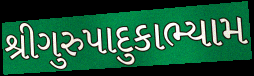
શ્રીગુરુપાદુકાભ્યામ